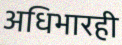
अधिभारही